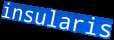
insularis